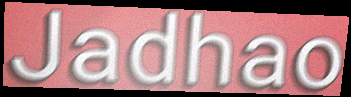
Jadhao